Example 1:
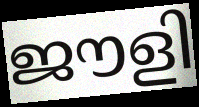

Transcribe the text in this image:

ജൗളി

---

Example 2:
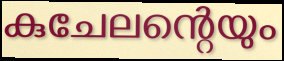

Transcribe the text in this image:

കുചേലന്റെയും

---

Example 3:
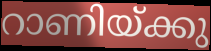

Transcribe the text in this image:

റാണിയ്ക്കു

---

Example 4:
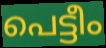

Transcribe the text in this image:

പെട്ടീം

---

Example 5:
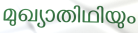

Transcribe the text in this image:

മുഖ്യാതിഥിയും